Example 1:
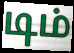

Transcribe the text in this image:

டிம்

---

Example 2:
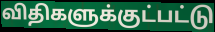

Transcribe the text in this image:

விதிகளுக்குட்பட்டு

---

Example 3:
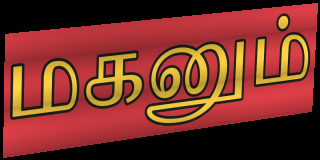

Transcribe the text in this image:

மகனும்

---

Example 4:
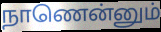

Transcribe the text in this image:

நாணென்னும்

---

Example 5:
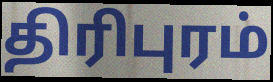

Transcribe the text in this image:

திரிபுரம்